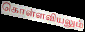
கொள்ளவியலும்